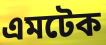
এমটেক